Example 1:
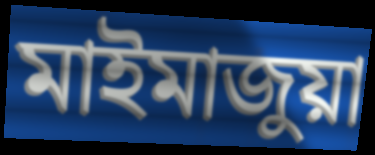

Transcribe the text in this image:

মাইমাজুয়া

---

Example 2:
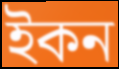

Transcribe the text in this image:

ইকন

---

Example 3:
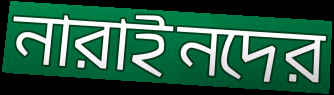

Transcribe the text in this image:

নারাইনদের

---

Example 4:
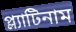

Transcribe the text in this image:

প্ল্যাটিনাম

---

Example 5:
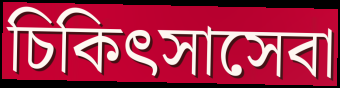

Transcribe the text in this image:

চিকিৎসাসেবা